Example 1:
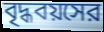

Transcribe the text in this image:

বৃদ্ধবয়সের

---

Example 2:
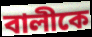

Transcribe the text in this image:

বালীকে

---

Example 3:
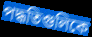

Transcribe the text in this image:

পদ্ধতিগুলিকে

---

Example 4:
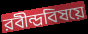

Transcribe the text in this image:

রবীন্দ্রবিষয়ে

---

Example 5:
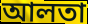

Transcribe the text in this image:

আলতা